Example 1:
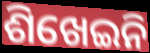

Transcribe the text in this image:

ଶିଖେଇନି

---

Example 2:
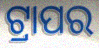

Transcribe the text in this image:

ଟ୍ରାପର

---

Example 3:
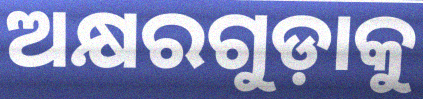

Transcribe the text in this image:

ଅକ୍ଷରଗୁଡ଼ାକୁ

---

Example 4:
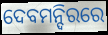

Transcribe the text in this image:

ଦେବମନ୍ଦିରରେ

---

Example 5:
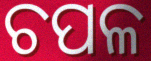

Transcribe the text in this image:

ଚପଳ